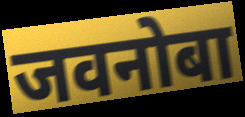
जवनोबा